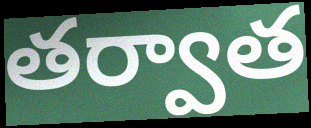
తర్వాత